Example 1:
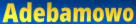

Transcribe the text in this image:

Adebamowo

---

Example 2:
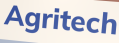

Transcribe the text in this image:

Agritech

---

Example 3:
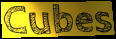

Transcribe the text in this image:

Cubes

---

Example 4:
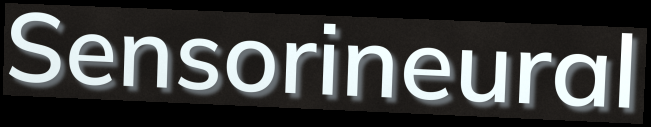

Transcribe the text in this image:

Sensorineural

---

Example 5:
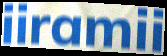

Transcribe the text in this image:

iiramii